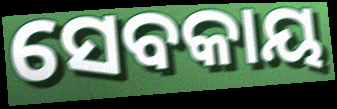
ସେବକାୟ